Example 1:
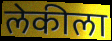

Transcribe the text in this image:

लेकीला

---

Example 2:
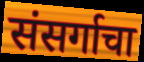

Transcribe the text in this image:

संसर्गाचा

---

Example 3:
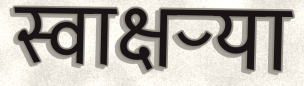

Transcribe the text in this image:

स्वाक्षऱ्या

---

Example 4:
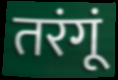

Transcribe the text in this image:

तरंगूं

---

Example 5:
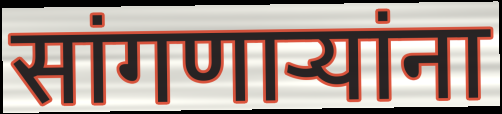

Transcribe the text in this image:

सांगणार्‍यांना